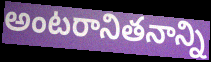
అంటరానితనాన్ని